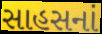
સાહસનાં